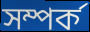
সম্পৰ্ক